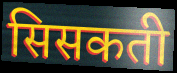
सिसकती